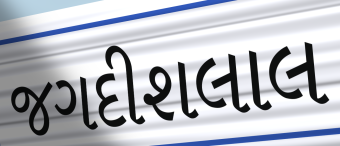
જગદીશલાલ